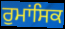
ਰੁਮਾਂਸਿਕ